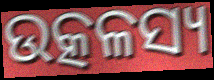
ଉତ୍କଳସ୍ୟ